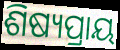
ଶିଷ୍ୟପ୍ରାୟ